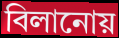
বিলানোয়